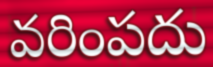
వరింపదు